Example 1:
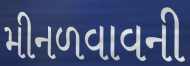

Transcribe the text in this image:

મીનળવાવની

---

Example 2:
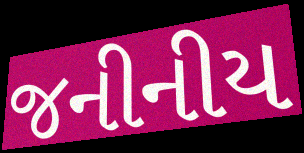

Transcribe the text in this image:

જનીનીય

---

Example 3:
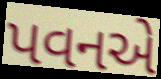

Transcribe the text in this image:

પવનએ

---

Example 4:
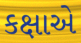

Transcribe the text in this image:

કક્ષાએ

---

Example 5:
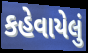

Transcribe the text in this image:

કહેવાયેલું